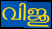
വിജു